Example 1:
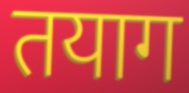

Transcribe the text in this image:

तयाग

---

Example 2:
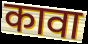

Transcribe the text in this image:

कावा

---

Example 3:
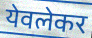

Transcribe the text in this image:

येवलेकर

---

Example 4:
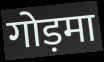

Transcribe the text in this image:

गोड़मा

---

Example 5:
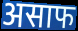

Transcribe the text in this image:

असाफ